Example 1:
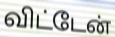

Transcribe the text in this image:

விட்டேன்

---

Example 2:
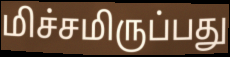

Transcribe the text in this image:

மிச்சமிருப்பது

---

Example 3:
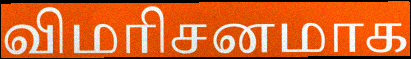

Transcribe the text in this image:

விமரிசனமாக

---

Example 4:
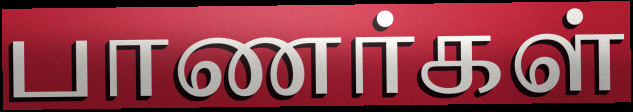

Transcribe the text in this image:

பாணர்கள்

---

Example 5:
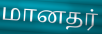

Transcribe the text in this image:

மானதர்